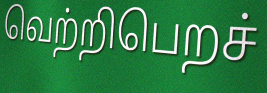
வெற்றிபெறச்